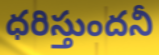
ధరిస్తుందనీ